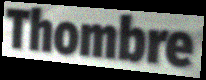
Thombre